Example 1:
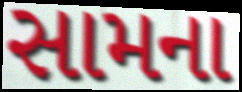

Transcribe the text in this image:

સામના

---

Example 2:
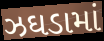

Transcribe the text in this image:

ઝઘડામાં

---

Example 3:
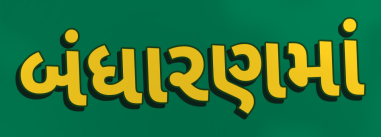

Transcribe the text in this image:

બંધારણમાં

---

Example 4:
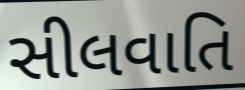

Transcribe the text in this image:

સીલવાતિ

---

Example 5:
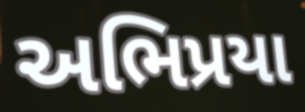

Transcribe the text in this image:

અભિપ્રયા